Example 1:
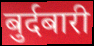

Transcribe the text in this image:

बुर्दबारी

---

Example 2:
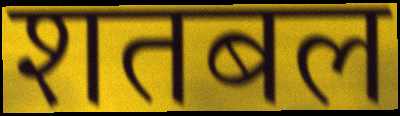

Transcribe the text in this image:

शतबल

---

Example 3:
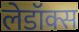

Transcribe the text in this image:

लेडॉक्स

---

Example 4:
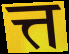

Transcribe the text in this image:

त्त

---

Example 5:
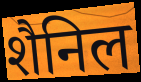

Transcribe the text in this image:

शैनिल